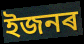
ইজনৰ